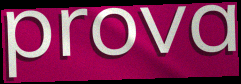
prova